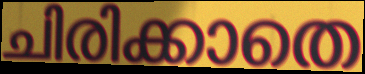
ചിരിക്കാതെ